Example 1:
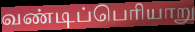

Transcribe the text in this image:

வண்டிப்பெரியாறு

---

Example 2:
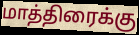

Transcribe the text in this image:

மாத்திரைக்கு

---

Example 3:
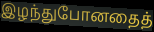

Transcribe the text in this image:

இழந்துபோனதைத்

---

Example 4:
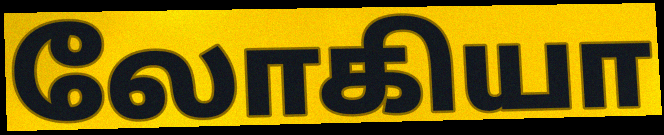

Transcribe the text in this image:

லோகியா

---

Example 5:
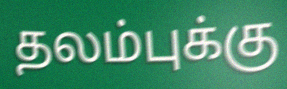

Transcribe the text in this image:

தலம்புக்கு